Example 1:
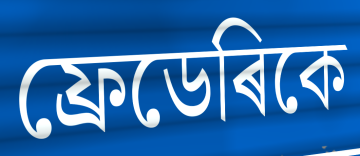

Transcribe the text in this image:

ফ্ৰেডেৰিকে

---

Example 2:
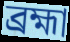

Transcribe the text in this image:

ব্ৰহ্মা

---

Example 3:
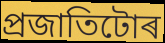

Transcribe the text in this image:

প্ৰজাতিটোৰ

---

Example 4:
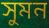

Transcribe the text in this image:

সুমন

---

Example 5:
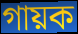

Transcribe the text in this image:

গায়ক